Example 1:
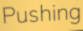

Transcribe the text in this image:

Pushing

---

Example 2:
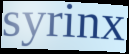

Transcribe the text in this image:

syrinx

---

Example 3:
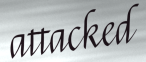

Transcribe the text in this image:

attacked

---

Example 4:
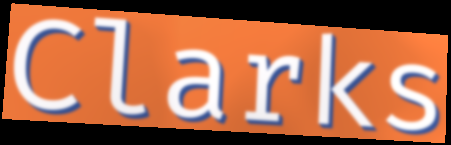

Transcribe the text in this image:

Clarks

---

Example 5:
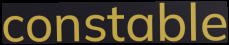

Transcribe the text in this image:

constable